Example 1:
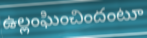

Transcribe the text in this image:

ఉల్లంఘించిందంటూ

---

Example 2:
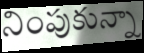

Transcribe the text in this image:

నింపుకున్నా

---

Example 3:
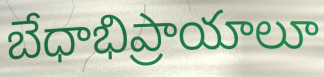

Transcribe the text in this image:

బేధాభిప్రాయాలూ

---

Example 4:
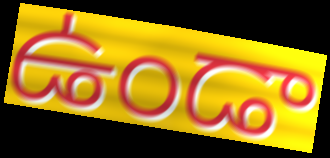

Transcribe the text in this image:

ఉండా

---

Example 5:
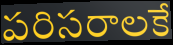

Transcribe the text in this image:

పరిసరాలకే